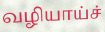
வழியாய்ச்